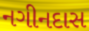
નગીનદાસ